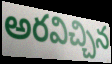
అరవిచ్చిన